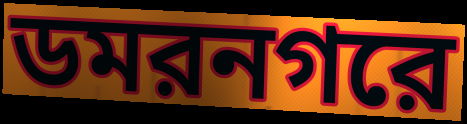
ডমরনগরে